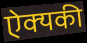
ऐक्यकी